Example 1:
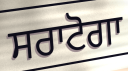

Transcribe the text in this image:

ਸਰਾਟੋਗਾ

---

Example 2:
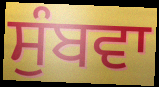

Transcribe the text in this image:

ਸੁੰਬਵਾ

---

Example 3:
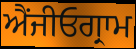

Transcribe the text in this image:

ਐਂਜੀਓਗ੍ਰਾਮ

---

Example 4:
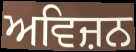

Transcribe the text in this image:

ਅਵਿਜ਼ਨ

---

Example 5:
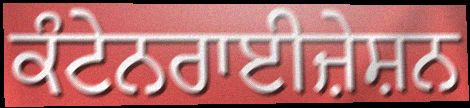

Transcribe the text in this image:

ਕੰਟੇਨਰਾਈਜ਼ੇਸ਼ਨ